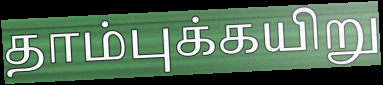
தாம்புக்கயிறு